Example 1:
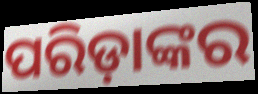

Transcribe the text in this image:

ପରିଡ଼ାଙ୍କର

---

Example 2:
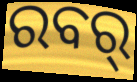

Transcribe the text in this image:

ରବର୍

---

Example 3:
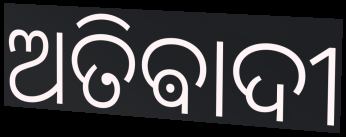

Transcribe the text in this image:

ଅତିଵାଦୀ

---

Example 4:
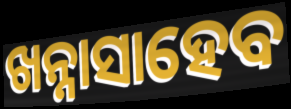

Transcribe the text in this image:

ଖନ୍ନାସାହେବ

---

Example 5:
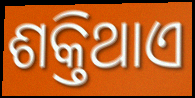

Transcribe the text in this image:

ଶକ୍ତିଥାଏ